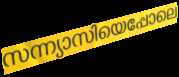
സന്ന്യാസിയെപ്പോലെ